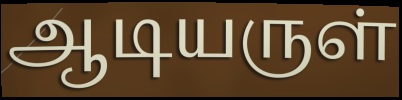
ஆடியருள்